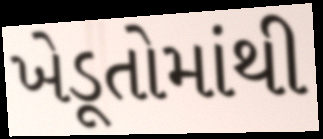
ખેડૂતોમાંથી